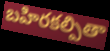
బహిరకల్పితా